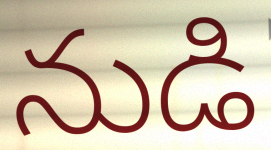
నుడి